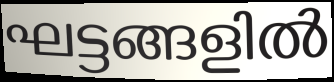
ഘട്ടങ്ങളിൽ